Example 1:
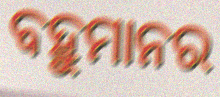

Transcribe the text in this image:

ବହୁମାନର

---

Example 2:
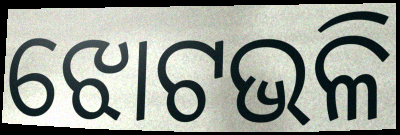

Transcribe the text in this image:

ଝୋଟଭଳି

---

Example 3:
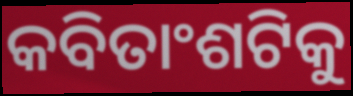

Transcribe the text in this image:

କବିତାଂଶଟିକୁ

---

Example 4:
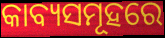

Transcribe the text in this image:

କାବ୍ୟସମୂହରେ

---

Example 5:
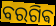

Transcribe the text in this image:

ବରଗିଵ